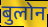
बुलोन